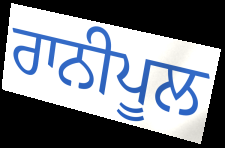
ਰਾਨੀਪੂਲ